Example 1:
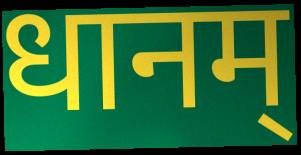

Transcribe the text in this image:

धानम्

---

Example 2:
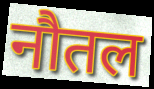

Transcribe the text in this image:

नौतल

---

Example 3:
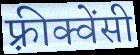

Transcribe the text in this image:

फ़्रीक्वेंसी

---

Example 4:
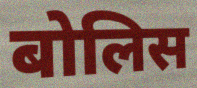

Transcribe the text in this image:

बोलिस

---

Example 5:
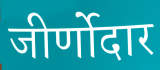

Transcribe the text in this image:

जीर्णोदार